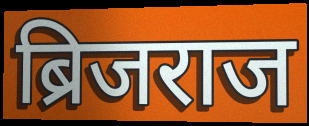
ब्रिजराज